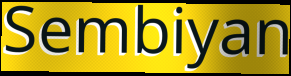
Sembiyan